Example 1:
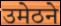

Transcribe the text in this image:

उमेठने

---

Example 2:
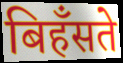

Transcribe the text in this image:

बिहँसते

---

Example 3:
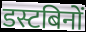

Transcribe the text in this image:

डस्टबिनों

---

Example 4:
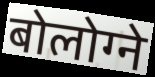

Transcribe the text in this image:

बोलोग्ने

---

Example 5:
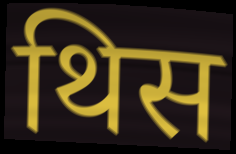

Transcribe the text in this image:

थिस